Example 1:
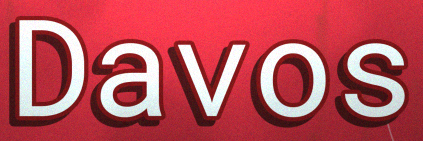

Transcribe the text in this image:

Davos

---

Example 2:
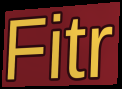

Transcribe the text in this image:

Fitr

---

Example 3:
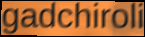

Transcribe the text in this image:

gadchiroli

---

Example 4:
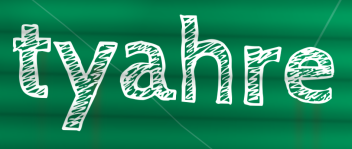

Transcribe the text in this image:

tyahre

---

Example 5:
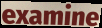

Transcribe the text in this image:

examine